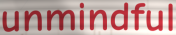
unmindful